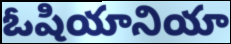
ఓషియానియా